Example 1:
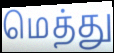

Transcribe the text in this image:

மெத்து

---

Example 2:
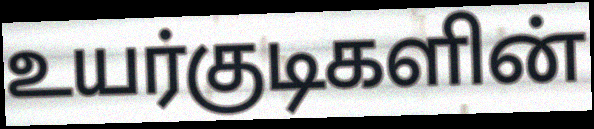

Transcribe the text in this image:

உயர்குடிகளின்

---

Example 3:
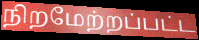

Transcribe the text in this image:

நிறமேற்றப்பட்ட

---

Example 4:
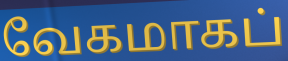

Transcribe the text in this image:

வேகமாகப்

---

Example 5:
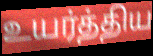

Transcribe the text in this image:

உயர்த்திய